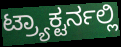
ಟ್ರ್ಯಾಕ್ಟರ್ನಲ್ಲಿ